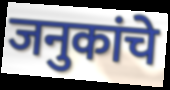
जनुकांचे